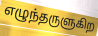
எழுந்தருளுகிற